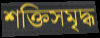
শক্তিসমৃদ্ধ